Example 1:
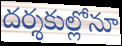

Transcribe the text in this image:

దర్శకుల్లోనూ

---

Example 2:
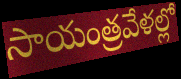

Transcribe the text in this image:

సాయంత్రవేళల్లో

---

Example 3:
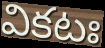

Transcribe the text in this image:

వికటః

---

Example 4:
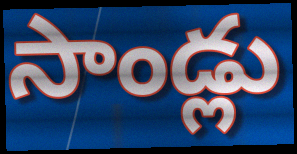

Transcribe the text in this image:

సాండ్లు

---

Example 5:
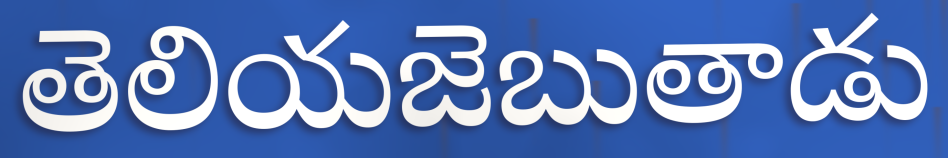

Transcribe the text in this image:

తెలియజెబుతాడు